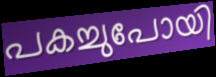
പകച്ചുപോയി